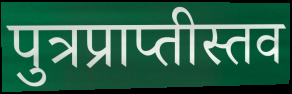
पुत्रप्राप्तीस्तव